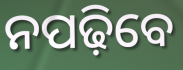
ନପଢ଼ିବେ